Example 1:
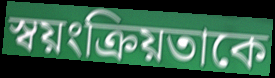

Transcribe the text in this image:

স্বয়ংক্রিয়তাকে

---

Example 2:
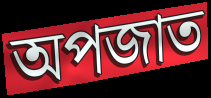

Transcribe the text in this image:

অপজাত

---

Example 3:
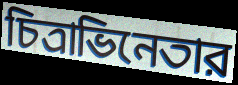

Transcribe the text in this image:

চিত্রাভিনেতার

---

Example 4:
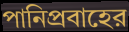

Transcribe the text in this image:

পানিপ্রবাহের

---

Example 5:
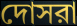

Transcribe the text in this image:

দোসরা